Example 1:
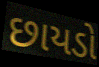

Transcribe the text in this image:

છાયડો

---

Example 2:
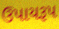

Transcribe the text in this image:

ઉપાયરૂપ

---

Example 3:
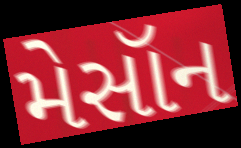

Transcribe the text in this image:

મેસૉન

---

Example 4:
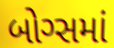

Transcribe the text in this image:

બોગ્સમાં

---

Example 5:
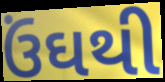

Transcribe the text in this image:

ઉંઘથી